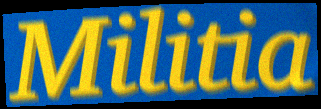
Militia